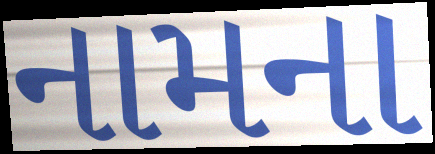
નામના